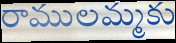
రాములమ్మకు